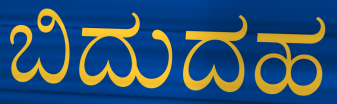
ಬಿದುದಹ